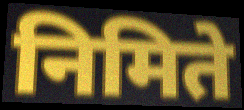
निमिते